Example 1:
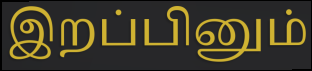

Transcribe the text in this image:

இறப்பினும்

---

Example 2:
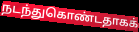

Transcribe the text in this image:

நடந்துகொண்டதாகக்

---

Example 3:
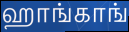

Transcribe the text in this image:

ஹாங்காங்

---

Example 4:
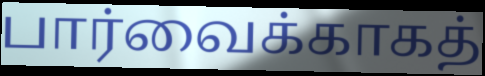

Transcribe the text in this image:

பார்வைக்காகத்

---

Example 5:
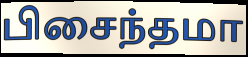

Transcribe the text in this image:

பிசைந்தமா